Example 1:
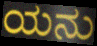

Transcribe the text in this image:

ಯನು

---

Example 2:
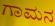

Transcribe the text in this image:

ಗಾಮನ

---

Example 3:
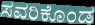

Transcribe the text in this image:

ಸವರಿಕೊಂಡ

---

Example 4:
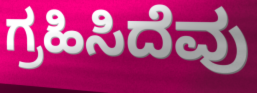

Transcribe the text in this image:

ಗ್ರಹಿಸಿದೆವು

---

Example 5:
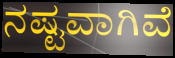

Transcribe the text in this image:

ನಷ್ಟವಾಗಿವೆ